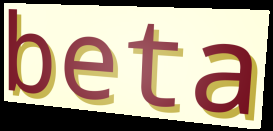
beta